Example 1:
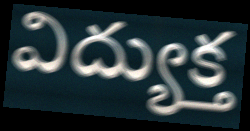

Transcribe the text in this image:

విద్యుక్త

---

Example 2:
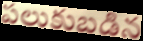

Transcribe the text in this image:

పలుకుబడిన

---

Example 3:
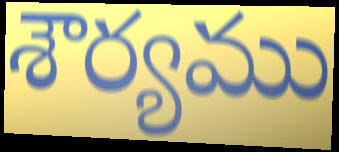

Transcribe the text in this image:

శౌర్యము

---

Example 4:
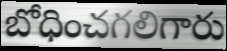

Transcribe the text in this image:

బోధించగలిగారు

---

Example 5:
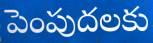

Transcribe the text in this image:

పెంపుదలకు